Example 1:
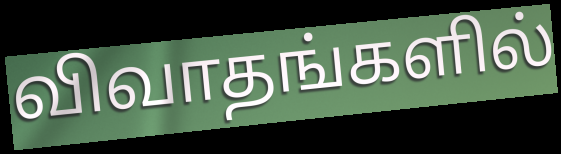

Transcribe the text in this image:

விவாதங்களில்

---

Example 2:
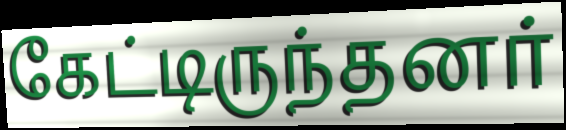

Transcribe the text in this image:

கேட்டிருந்தனர்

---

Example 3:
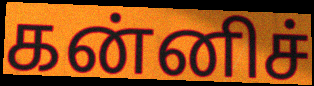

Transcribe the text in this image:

கன்னிச்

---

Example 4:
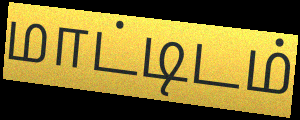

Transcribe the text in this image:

மாட்டிடம்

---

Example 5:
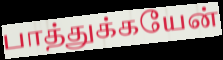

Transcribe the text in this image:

பாத்துக்கயேன்